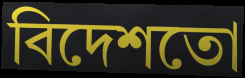
বিদেশতো